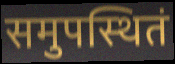
समुपस्थितं